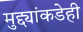
मुद्द्यांकडेही